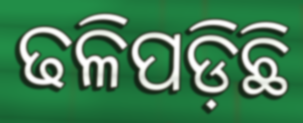
ଢଳିପଡ଼ିଛି